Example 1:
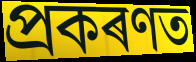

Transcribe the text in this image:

প্ৰকৰণত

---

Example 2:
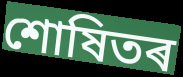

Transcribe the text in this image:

শোষিতৰ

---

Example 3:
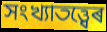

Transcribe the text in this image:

সংখ্যাতত্ত্বেৰ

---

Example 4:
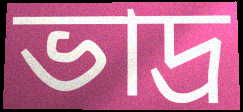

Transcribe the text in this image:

ভাদ্ৰ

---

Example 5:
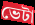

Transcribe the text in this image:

ভেটা